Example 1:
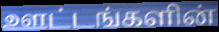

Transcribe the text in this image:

ஊட்டங்களின்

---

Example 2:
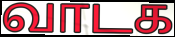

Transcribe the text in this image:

வாடக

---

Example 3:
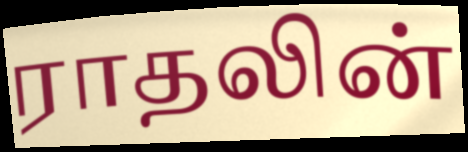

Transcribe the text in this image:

ராதலின்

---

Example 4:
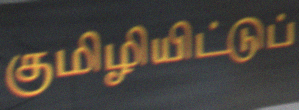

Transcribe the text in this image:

குமிழியிட்டுப்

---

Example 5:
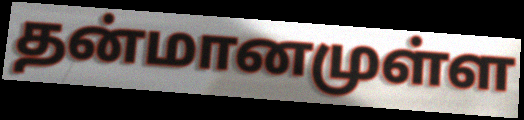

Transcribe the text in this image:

தன்மானமுள்ள